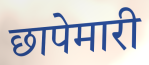
छापेमारी